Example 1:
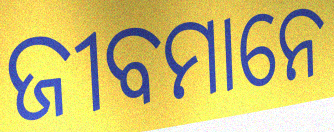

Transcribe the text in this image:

ଜୀବମାନେ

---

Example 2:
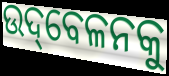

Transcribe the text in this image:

ଉଦ୍‌ବେଳନକୁ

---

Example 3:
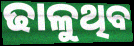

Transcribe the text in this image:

ଢାଳୁଥିବ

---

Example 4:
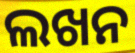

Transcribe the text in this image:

ଲଖନ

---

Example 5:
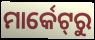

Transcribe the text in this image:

ମାର୍କେଟ୍‌ରୁ